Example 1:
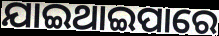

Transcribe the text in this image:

ଯାଇଥାଇପାରେ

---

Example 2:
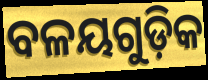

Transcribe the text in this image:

ବଳୟଗୁଡ଼ିକ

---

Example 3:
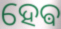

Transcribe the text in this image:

ହେଵ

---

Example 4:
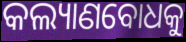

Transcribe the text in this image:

କଲ୍ୟାଣବୋଧକୁ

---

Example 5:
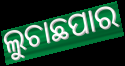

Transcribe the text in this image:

ଲୁଚାଛପାର